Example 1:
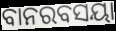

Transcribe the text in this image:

ବାନରବସୟା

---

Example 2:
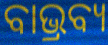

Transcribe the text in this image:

ବାଭ୍ରବ୍ୟ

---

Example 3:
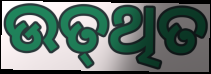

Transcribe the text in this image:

ଉତ୍‌ଥିତ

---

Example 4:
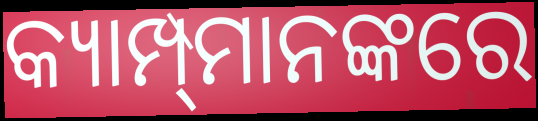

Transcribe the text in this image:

କ୍ୟାମ୍ପ୍‍ମାନଙ୍କରେ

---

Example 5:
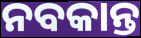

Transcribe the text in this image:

ନବକାନ୍ତ